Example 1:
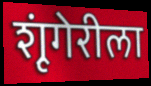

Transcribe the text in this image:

श्रृंगेरीला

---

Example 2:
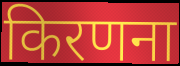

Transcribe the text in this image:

किरणना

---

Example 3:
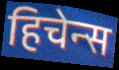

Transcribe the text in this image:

हिचेन्स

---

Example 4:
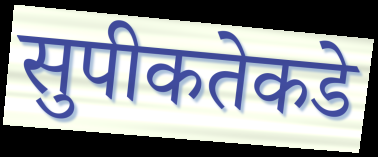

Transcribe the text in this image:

सुपीकतेकडे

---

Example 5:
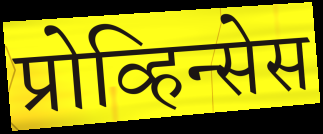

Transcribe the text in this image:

प्रोव्हिन्सेस